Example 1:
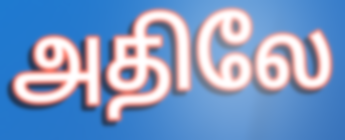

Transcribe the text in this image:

அதிலே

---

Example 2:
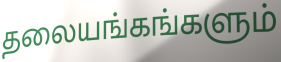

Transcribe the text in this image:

தலையங்கங்களும்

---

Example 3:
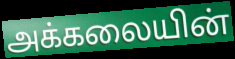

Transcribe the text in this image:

அக்கலையின்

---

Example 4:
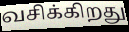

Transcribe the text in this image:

வசிக்கிறது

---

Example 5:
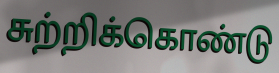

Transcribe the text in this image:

சுற்றிக்கொண்டு